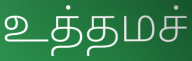
உத்தமச்